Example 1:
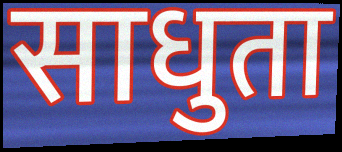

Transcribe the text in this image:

साधुता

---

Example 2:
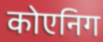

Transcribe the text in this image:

कोएनिग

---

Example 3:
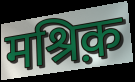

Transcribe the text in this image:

मश्रिक़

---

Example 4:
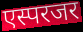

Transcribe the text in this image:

एस्परजर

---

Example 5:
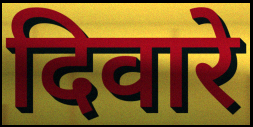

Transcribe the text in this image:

दिवारे